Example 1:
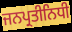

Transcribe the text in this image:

ਜਨਪ੍ਰਤੀਨਿਧੀ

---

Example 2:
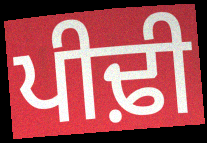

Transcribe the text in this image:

ਪੀਢ਼ੀ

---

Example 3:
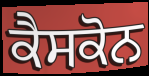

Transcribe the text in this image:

ਕੈਸਕੋਨ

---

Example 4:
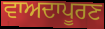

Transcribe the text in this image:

ਵਾਅਦਾਪੂਰਣ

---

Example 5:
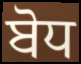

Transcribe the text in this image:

ਬੋਧ